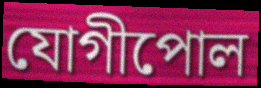
যোগীপোল